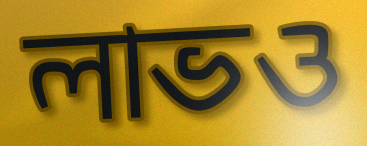
লাভও